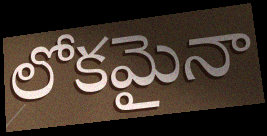
లోకమైనా